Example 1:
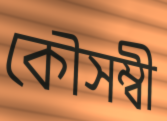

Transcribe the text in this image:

কৌসম্বী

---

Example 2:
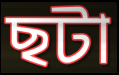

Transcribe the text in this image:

ছটা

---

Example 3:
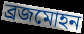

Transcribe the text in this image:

ব্ৰজমোহন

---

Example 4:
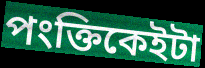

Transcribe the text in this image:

পংক্তিকেইটা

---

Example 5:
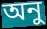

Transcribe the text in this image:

অনু